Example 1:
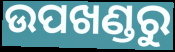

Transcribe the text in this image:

ଉପଖଣ୍ଡରୁ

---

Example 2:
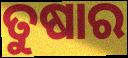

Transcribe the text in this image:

ତୁଷାର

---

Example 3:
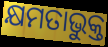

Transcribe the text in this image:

କ୍ଷମତାଭୁକ୍ତ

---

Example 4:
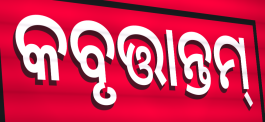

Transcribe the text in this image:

କବୃତ୍ତାନ୍ତମ୍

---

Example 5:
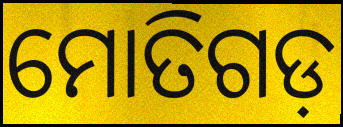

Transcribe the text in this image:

ମୋତିଗଡ଼